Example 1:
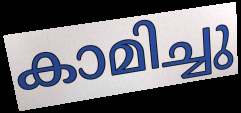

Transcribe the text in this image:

കാമിച്ചു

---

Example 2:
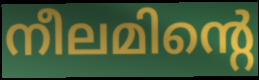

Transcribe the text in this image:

നീലമിന്റെ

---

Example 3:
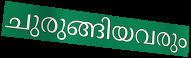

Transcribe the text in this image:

ചുരുങ്ങിയവരും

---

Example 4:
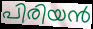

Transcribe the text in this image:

പിരിയൻ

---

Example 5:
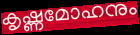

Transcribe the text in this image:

കൃഷ്ണമോഹനും